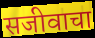
सजीवाचा